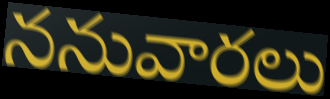
ననువారలు